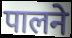
पालने